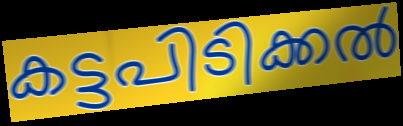
കട്ടപിടിക്കൽ